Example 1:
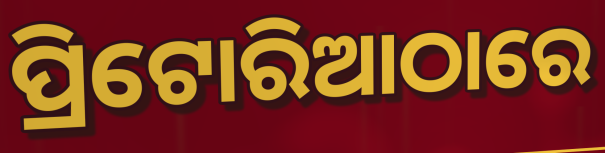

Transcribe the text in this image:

ପ୍ରିଟୋରିଆଠାରେ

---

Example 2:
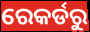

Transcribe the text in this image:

ରେକର୍ଡରୁ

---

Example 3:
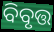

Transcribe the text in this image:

ବିବୃତ୍ତ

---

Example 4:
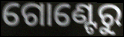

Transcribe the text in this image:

ଗୋଣ୍ଟେରୁ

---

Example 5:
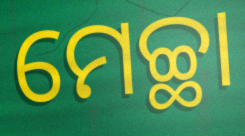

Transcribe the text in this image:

ମେଚ୍ଛା